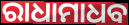
ରାଧାମାଧବ